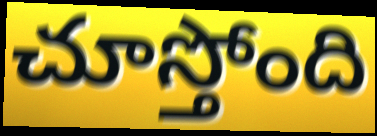
చూస్తోంది